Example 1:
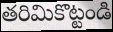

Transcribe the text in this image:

తరిమికొట్టండి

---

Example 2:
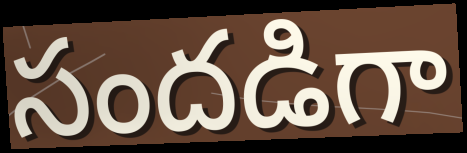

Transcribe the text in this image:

సందడిగా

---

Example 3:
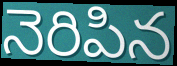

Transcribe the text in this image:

నెరిపిన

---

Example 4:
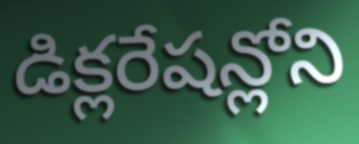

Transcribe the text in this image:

డిక్లరేషన్లోని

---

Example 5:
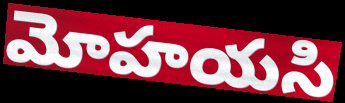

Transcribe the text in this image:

మోహయసి